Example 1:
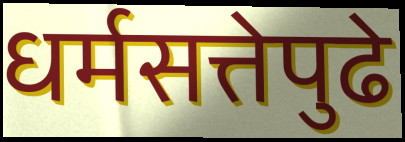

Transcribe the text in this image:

धर्मसत्तेपुढे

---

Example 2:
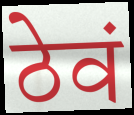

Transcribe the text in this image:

ठेवं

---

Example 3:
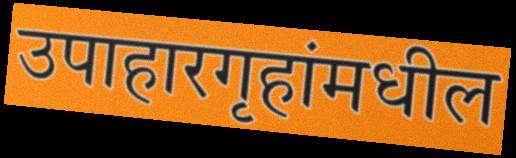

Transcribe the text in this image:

उपाहारगृहांमधील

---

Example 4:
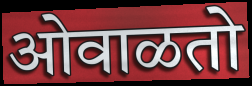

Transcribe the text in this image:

ओवाळतो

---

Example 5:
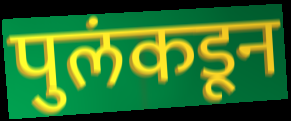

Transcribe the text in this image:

पुलंकडून